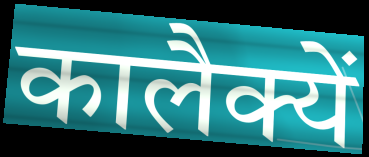
कालैक्यें